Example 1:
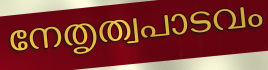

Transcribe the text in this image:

നേതൃത്വപാടവം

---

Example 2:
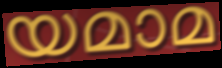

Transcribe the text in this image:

യമാമ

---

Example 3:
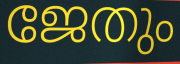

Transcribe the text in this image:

ജേതും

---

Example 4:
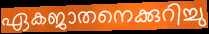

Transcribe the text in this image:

ഏകജാതനെക്കുറിച്ചു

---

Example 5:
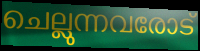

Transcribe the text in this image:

ചെല്ലുന്നവരോട്